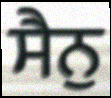
ਸੈਨੁ